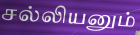
சல்லியனும்